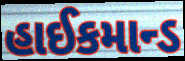
હાઈકમાન્ડ